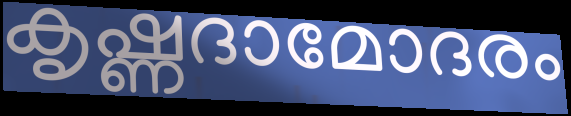
കൃഷ്ണദാമോദരം